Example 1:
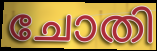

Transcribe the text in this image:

ചോതി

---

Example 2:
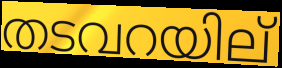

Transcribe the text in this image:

തടവറയില്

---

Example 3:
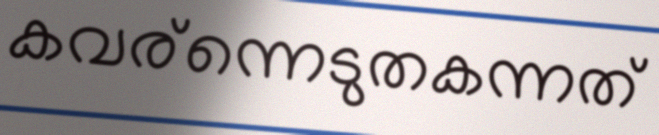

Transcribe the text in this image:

കവര്ന്നെടുതകന്നത്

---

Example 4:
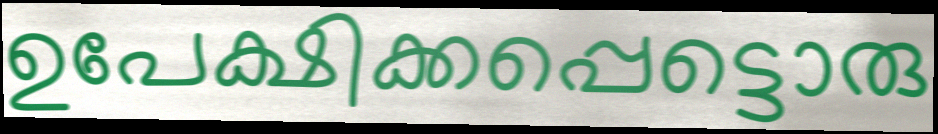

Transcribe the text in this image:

ഉപേക്ഷിക്കപ്പെട്ടൊരു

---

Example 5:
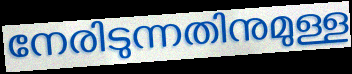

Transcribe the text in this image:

നേരിടുന്നതിനുമുള്ള